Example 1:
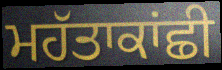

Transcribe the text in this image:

ਮਹੱਤਾਕਾਂਛੀ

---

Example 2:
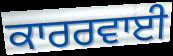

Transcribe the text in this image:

ਕਾਰਰਵਾਈ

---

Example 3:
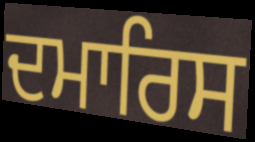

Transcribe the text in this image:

ਦਮਾਰਿਸ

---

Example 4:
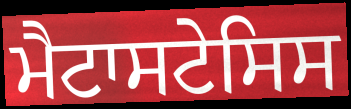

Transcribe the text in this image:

ਮੈਟਾਸਟੇਸਿਸ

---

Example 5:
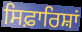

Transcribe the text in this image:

ਸਿਫ਼ਾਰਿਸ਼ਾਂ